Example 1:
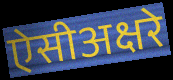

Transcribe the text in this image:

ऐसीअक्षरे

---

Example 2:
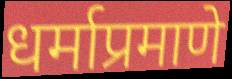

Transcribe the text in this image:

धर्माप्रमाणे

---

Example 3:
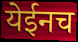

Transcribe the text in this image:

येईनच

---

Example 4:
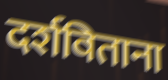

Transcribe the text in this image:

दर्शविताना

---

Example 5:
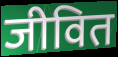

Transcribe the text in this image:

जीवित